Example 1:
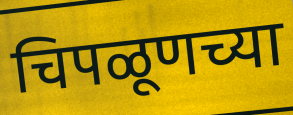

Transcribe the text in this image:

चिपळूणच्या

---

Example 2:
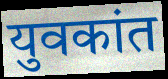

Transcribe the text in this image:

युवकांत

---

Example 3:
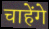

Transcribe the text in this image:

चाहेंगे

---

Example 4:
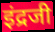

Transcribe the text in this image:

इंद्रजी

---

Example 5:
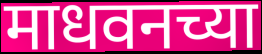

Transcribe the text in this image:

माधवनच्या